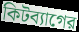
কিটব্যাগের